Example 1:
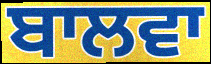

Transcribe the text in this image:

ਬਾਲਵਾ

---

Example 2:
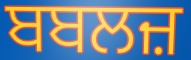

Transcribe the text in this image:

ਬਬਲਜ਼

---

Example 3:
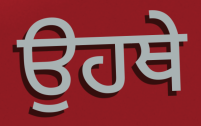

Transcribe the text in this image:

ਉਹਥੇ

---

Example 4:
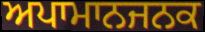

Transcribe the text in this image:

ਅਪਾਮਾਨਜਨਕ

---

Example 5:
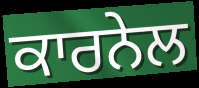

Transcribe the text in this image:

ਕਾਰਨੇਲ